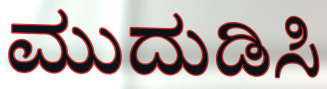
ಮುದುಡಿಸಿ